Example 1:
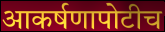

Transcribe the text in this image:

आकर्षणापोटीच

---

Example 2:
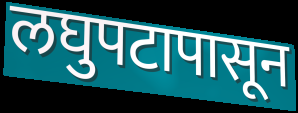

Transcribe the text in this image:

लघुपटापासून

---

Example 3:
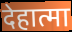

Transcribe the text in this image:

देहात्मा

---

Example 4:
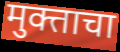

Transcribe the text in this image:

मुक्ताचा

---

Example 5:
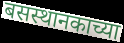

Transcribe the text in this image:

बसस्थानकाच्या